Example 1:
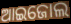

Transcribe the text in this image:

ଆଇଜୋଲ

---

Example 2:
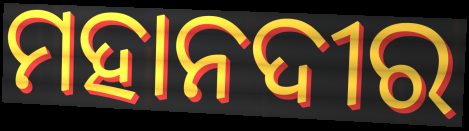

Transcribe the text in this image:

ମହାନଦୀର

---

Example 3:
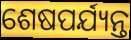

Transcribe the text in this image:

ଶେଷପର୍ଯ୍ୟନ୍ତ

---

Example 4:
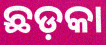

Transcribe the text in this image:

ଛଡ଼କା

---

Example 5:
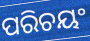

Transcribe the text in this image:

ପରିଚୟଂ